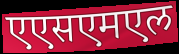
एएसएमएल